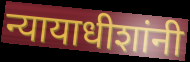
न्यायाधीशांनी